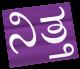
ನಿತ್ತ